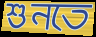
শুনতে